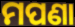
ମପଣା